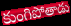
కుంగిపోతాడు